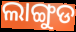
ଲାଙ୍ଗୁଡ